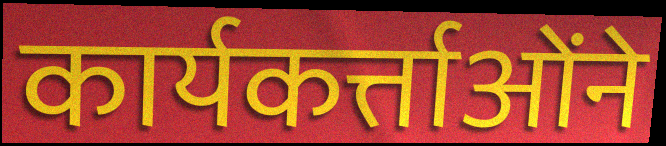
कार्यकर्त्ताओंने